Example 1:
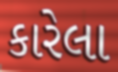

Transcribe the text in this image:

કારેલા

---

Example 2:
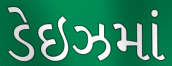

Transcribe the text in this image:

ડેઇઝમાં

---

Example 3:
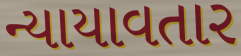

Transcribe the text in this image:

ન્યાયાવતાર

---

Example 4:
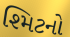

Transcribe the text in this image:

શ્મિટનો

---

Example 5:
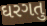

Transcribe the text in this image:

ઘરગતુ